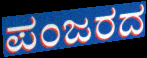
ಪಂಜರದ